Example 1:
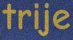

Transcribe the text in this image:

trije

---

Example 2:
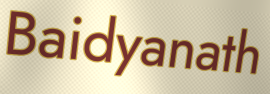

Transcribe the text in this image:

Baidyanath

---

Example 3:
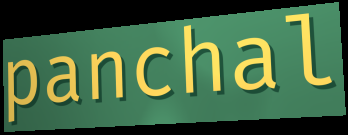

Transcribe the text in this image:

panchal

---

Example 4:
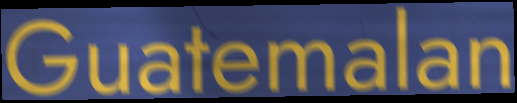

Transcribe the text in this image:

Guatemalan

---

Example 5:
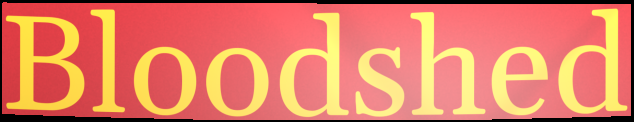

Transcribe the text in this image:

Bloodshed